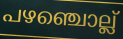
പഴഞ്ചൊല്ല്